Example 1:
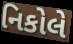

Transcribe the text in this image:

નિકોલે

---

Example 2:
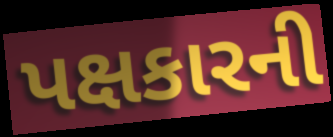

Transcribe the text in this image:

પક્ષકારની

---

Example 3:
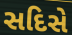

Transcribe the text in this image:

સદિસે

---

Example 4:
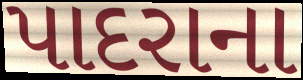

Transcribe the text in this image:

પાદરાના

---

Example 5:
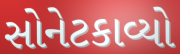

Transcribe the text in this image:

સોનેટકાવ્યો